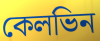
কেলভিন